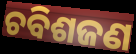
ଚବିଶଜଣ